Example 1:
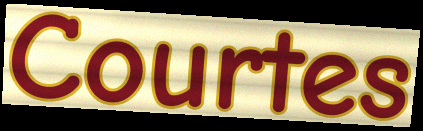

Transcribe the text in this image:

Courtes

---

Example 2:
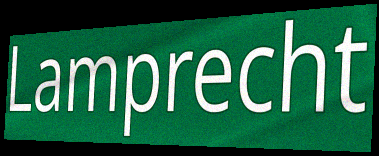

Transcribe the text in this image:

Lamprecht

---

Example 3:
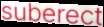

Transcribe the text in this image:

suberect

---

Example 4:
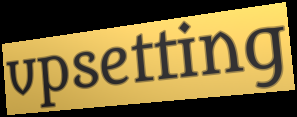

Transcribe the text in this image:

upsetting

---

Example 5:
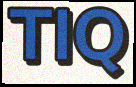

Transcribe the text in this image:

TIQ